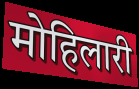
मोहिलारी